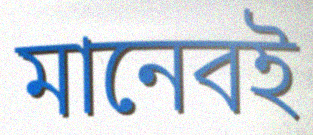
মানেবই